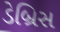
ડેબ્રિસ